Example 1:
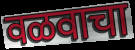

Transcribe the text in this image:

वळवाचा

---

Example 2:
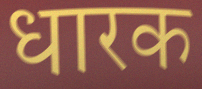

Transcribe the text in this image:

धारक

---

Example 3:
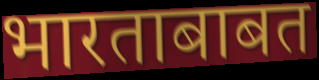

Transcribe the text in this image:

भारताबाबत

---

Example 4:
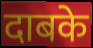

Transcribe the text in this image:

दाबके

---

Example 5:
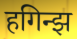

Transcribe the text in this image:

हगिन्झ